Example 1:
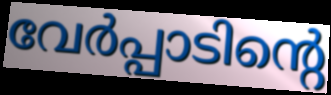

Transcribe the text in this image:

വേർപ്പാടിന്റെ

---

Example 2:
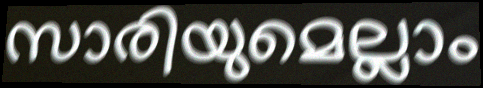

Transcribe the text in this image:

സാരിയുമെല്ലാം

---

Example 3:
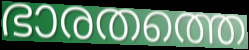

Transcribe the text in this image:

ഭാരതത്തെ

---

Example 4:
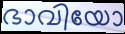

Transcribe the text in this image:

ഭാവിയോ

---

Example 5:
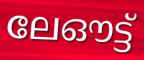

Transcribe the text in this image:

ലേഔട്ട്